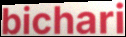
bichari